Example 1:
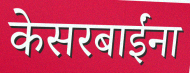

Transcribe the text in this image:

केसरबाईंना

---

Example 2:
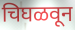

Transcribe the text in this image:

चिघळवून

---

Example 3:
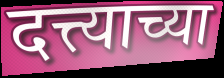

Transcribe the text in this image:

दत्त्याच्या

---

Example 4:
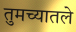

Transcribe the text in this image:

तुमच्यातले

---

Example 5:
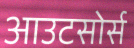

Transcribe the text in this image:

आउटसोर्स